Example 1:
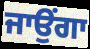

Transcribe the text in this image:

ਜਾਉਂਗਾ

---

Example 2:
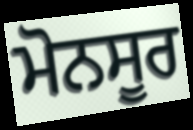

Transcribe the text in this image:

ਮੋਨਸੂਰ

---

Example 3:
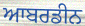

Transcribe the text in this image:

ਆਬਰਡੀਨ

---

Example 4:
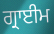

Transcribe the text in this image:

ਗ੍ਰਾਈਮ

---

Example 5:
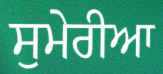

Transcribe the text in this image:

ਸੁਮੇਰੀਆ